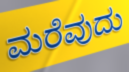
ಮರೆವುದು